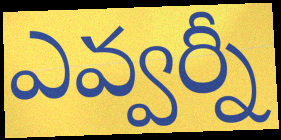
ఎవ్వర్నీ